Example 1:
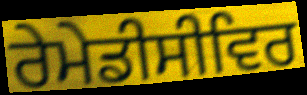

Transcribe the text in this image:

ਰੇਮੇਡੀਸੀਵਿਰ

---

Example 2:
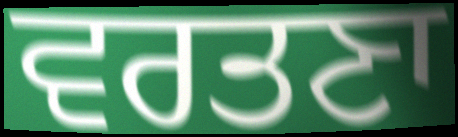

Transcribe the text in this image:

ਵਰਤਣਾ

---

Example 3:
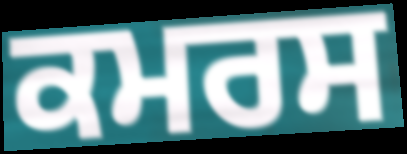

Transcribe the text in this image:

ਕਮਰਸ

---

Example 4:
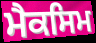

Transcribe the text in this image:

ਮੈਕਸਿਮ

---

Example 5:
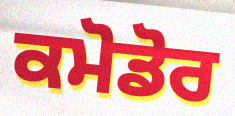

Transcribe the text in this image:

ਕਮੋਡੋਰ